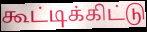
கூட்டிக்கிட்டு